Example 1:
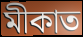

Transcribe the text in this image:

মীকাত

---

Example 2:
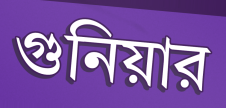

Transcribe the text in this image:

গুনিয়ার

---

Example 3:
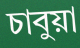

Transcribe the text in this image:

চাবুয়া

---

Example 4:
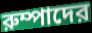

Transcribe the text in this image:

রুম্পাদের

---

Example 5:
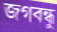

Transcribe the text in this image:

জগবন্ধু